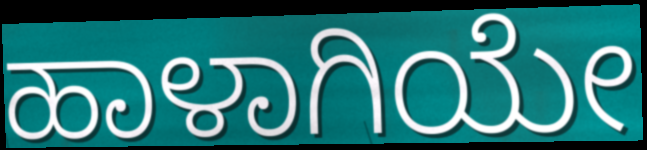
ಹಾಳಾಗಿಯೇ